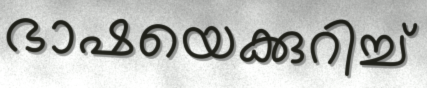
ഭാഷയെക്കുറിച്ച്